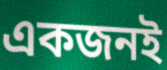
একজনই